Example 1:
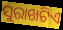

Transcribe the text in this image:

ସୁରାଖଟିଏ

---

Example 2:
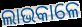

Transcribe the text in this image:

ଲାଭକାଳେ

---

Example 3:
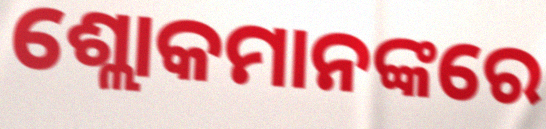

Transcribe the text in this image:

ଶ୍ଲୋକମାନଙ୍କରେ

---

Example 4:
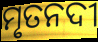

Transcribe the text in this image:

ମୃତନଦୀ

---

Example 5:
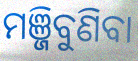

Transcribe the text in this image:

ମଞ୍ଜିବୁଣିବା